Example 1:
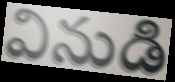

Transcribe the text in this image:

వినుడి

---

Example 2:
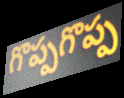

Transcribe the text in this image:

గొప్పగొప్ప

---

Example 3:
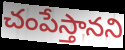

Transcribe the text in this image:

చంపేస్తానని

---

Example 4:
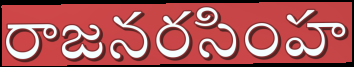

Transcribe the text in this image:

రాజనరసింహ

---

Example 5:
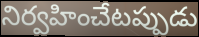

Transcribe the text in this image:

నిర్వహించేటప్పుడు